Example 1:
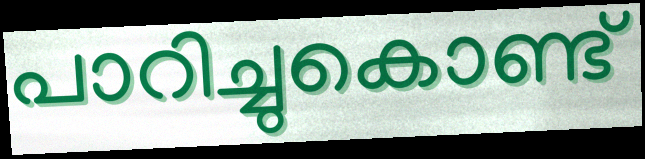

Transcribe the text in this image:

പാറിച്ചുകൊണ്ട്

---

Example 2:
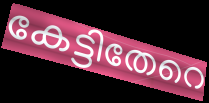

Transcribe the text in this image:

കേട്ടിതേറെ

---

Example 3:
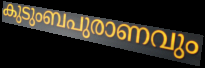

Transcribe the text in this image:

കുടുംബപുരാണവും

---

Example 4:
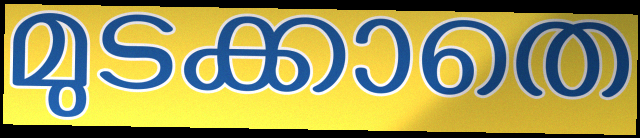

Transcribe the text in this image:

മുടക്കാതെ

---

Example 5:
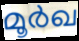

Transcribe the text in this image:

മൂർഖ